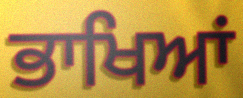
ਭਾਖਿਆਂ